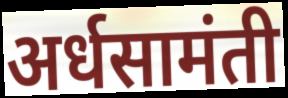
अर्धसामंती